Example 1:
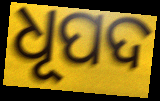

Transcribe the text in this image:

ଧୂପଦ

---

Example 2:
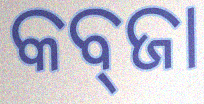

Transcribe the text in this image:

କବ୍‌ଜା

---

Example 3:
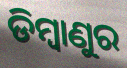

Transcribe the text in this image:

ଡିମ୍ବାଣୁର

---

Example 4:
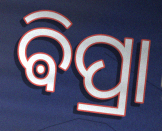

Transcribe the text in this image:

ଵିପ୍ରା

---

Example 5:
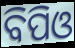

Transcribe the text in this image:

ବିପିଓ